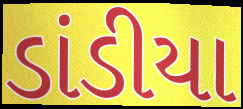
ડાંડીયા